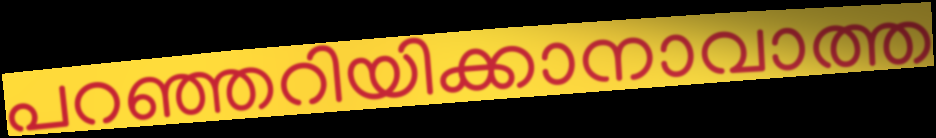
പറഞ്ഞറിയിക്കാനാവാത്ത